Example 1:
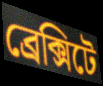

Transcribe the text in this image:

ব্রেক্সিটে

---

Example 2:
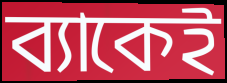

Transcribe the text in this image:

ব্যাকেই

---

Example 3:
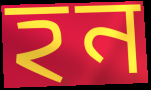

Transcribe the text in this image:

হন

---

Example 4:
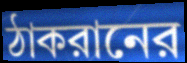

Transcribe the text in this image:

ঠাকরানের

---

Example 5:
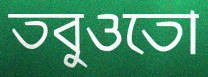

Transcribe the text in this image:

তবুওতো